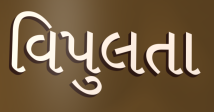
વિપુલતા